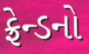
ફ્રેન્ડનો